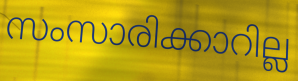
സംസാരിക്കാറില്ല